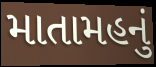
માતામહનું